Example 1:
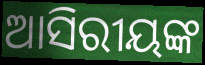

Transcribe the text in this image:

ଆସିରୀୟଙ୍କ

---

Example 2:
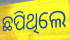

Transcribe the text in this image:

ଛପିଥିଲେ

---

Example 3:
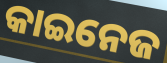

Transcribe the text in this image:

କାଇନେଜ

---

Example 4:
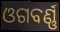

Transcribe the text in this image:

ଓଗବର୍ଣ୍ଣ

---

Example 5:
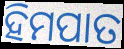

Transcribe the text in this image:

ହିମପାତ